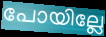
പോയില്ലേ